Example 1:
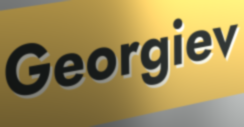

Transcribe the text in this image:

Georgiev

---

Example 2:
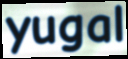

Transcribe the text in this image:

yugal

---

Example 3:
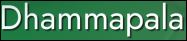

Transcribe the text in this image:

Dhammapala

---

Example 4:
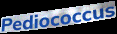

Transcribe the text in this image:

Pediococcus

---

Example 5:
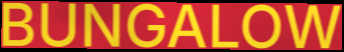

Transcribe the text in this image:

BUNGALOW